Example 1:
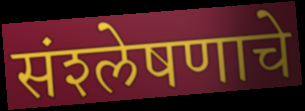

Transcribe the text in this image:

संश्लेषणाचे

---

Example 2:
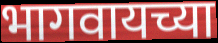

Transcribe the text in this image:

भागवायच्या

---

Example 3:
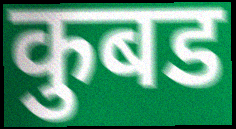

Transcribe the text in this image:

कुबड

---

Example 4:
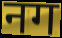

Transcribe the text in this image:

नग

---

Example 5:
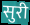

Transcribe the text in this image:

सुरी